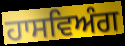
ਹਾਸਵਿਅੰਗ